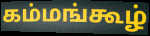
கம்மங்கூழ்